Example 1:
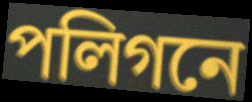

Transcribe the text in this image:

পলিগনে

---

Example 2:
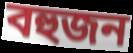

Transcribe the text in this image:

বহুজন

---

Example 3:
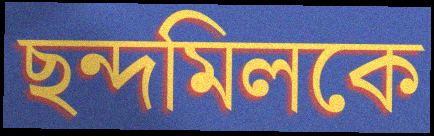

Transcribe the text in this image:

ছন্দমিলকে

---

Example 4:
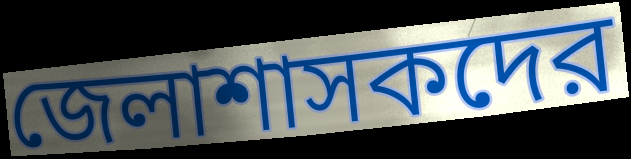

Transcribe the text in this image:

জেলাশাসকদের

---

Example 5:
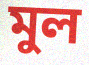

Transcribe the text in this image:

মুল